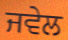
ਜਵੇਲ